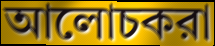
আলোচকরা